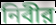
নিবীর